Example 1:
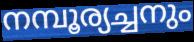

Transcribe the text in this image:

നമ്പൂര്യച്ചനും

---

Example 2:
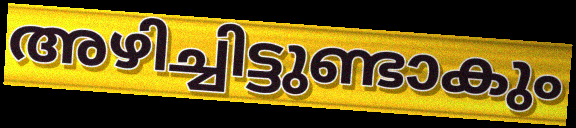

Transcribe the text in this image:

അഴിച്ചിട്ടുണ്ടാകും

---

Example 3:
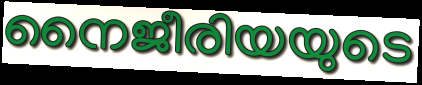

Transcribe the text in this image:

നൈജീരിയയുടെ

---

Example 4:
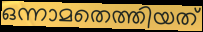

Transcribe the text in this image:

ഒന്നാമതെത്തിയത്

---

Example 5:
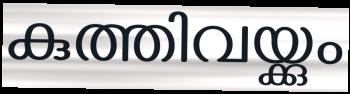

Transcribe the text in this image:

കുത്തിവയ്ക്കും